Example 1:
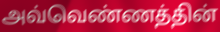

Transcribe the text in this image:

அவ்வெண்ணத்தின்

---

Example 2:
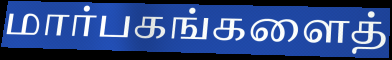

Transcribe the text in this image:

மார்பகங்களைத்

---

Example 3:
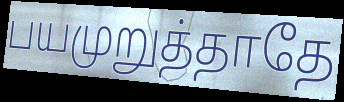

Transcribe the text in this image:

பயமுறுத்தாதே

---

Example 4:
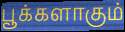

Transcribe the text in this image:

பூக்களாகும்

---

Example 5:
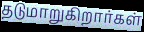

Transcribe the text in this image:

தடுமாறுகிறார்கள்